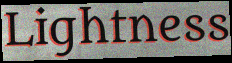
Lightness